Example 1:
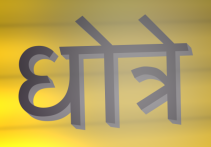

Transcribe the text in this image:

धोत्रे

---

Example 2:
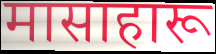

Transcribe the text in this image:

मासाहारू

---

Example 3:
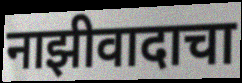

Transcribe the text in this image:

नाझीवादाचा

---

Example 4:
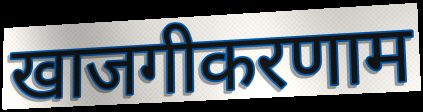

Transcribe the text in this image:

खाजगीकरणाम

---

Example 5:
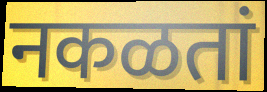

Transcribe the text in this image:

नकळतां